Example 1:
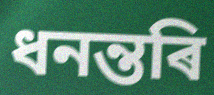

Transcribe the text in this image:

ধনন্তৰি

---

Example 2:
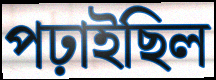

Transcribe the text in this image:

পঢ়াইছিল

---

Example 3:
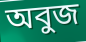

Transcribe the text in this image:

অবুজ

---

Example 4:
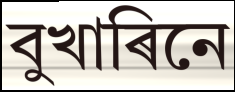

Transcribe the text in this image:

বুখাৰিনে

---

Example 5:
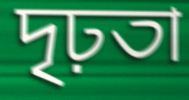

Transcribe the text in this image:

দৃঢ়তা